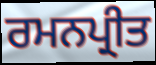
ਰਮਨਪ੍ਰੀਤ